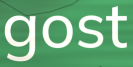
gost